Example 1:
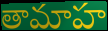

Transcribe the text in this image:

తామాహ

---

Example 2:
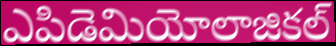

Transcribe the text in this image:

ఎపిడెమియోలాజికల్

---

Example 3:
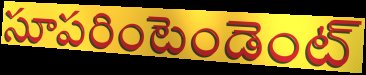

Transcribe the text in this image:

సూపరింటెండెంట్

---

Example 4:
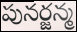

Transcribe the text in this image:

పునర్జన్మ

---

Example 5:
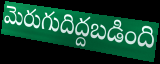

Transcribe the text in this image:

మెరుగుదిద్దబడింది